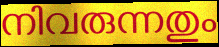
നിവരുന്നതും